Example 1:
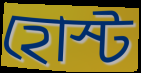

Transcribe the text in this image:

হোস্ট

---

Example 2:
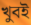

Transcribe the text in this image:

খুবই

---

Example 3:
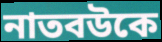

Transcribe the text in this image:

নাতবউকে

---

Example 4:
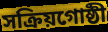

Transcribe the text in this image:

সক্রিয়গোষ্ঠী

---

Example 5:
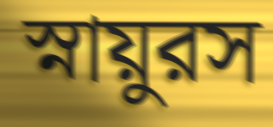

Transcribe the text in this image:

স্নায়ুরস